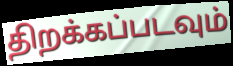
திறக்கப்படவும்